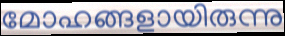
മോഹങ്ങളായിരുന്നു